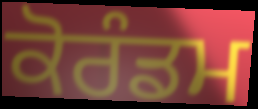
ਕੋਰੰਡਮ